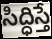
సిద్ధిస్తే